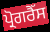
ਪ੍ਰੋਗਰੈੱਸ